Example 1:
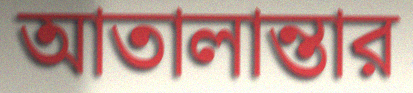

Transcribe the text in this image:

আতালান্তার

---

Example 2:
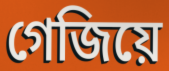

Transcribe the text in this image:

গেজিয়ে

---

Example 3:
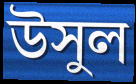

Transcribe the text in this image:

উসুল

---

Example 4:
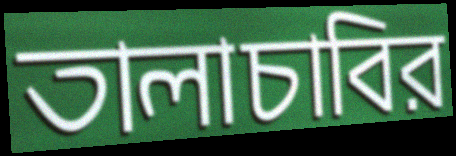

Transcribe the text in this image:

তালাচাবির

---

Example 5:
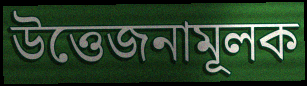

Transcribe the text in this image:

উত্তেজনামূলক